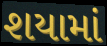
શયામાં